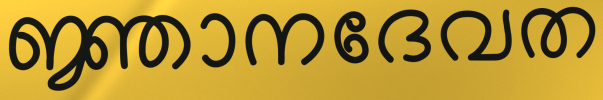
ജ്ഞാനദേവത